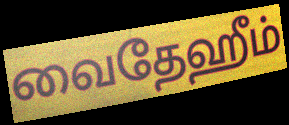
வைதேஹீம்